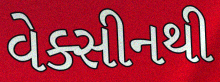
વેક્સીનથી